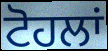
ਟੋਹਲਾਂ